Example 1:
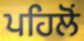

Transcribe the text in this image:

ਪਹਿਲੋਂ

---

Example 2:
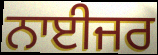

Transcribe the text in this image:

ਨਾਈਜਰ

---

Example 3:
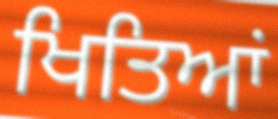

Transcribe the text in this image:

ਖਿਤਿਆਂ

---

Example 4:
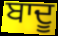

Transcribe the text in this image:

ਬਾਦੂ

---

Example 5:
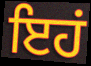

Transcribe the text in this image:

ਇਹਂ